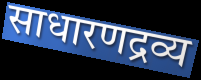
साधारणद्रव्य